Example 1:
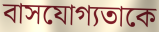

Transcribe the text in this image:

বাসযোগ্যতাকে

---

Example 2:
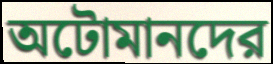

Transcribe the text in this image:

অটোমানদের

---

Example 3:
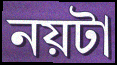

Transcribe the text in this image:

নয়টা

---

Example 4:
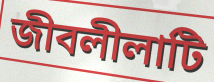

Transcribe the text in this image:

জীবলীলাটি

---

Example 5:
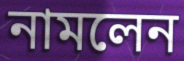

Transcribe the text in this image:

নামলেন